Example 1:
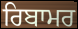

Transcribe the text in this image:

ਰਿਬਾਮਰ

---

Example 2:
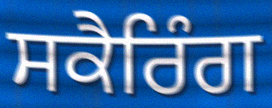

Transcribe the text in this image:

ਸਕੈਰਿੰਗ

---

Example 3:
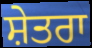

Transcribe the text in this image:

ਸ਼ੇਤਰਾ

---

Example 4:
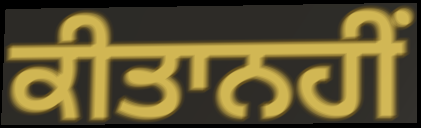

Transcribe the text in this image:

ਕੀਤਾਨਹੀਂ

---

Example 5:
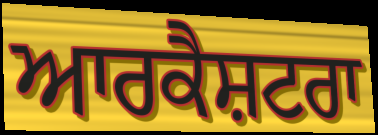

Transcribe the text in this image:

ਆਰਕੈਸ਼ਟਰਾ